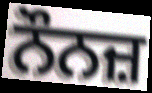
ਨੌਨਜ਼